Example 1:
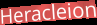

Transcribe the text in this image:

Heracleion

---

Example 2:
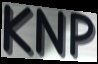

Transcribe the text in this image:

KNP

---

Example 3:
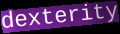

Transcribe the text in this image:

dexterity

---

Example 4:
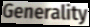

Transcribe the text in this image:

Generality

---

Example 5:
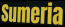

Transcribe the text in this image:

Sumeria